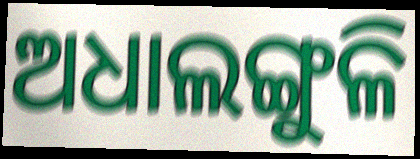
ଅଧାଲଙ୍ଗୁଳି